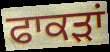
ਫਾਕੜਾਂ